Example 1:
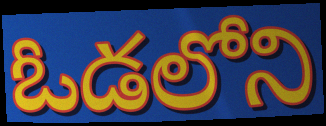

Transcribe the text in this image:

ఓడలోని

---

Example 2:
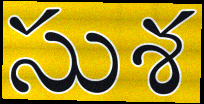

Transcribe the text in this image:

సుశ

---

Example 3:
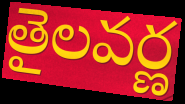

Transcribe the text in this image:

తైలవర్ణ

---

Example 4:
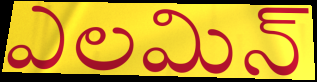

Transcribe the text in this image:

ఎలమిన్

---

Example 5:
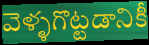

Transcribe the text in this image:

వెళ్ళగొట్టడానికీ